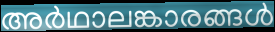
അർഥാലങ്കാരങ്ങൾ